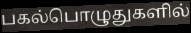
பகல்பொழுதுகளில்